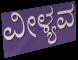
ವೀಳ್ಯವ